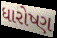
ધારોષ્ણ